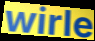
wirle